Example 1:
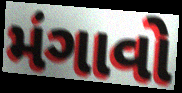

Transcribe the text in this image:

મંગાવો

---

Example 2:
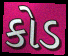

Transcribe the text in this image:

કોડ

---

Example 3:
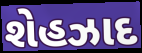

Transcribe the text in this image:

શેહઝાદ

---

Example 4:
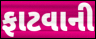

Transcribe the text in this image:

ફાટવાની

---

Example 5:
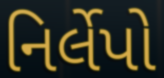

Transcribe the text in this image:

નિર્લેપો